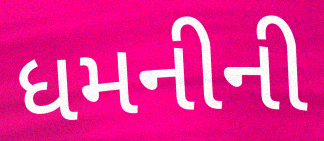
ધમનીની